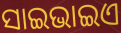
ସାଇଭାଇଏ